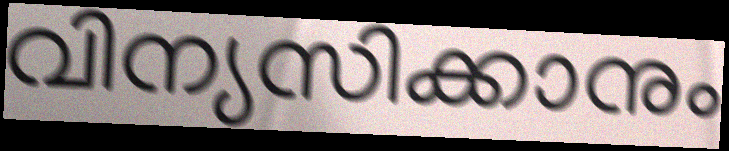
വിന്യസിക്കാനും